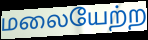
மலையேற்ற